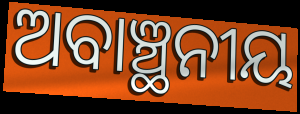
ଅବାଞ୍ଛନୀୟ